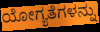
ಯೋಗ್ಯತೆಗಳನ್ನು